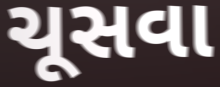
ચૂસવા